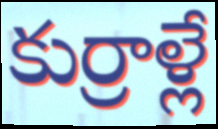
కుర్రాళ్లే